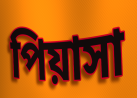
পিয়াসা